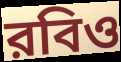
রবিও